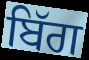
ਬਿੱਗ